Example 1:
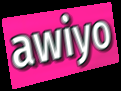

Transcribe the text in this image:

awiyo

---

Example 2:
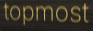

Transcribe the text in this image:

topmost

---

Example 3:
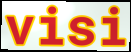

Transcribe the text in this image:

visi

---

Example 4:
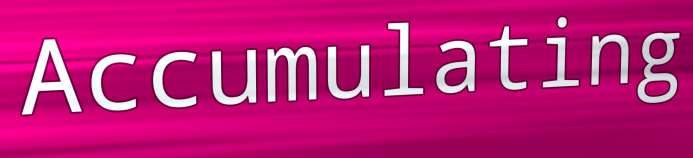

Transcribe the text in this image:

Accumulating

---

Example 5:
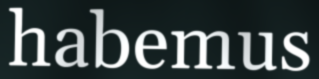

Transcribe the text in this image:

habemus